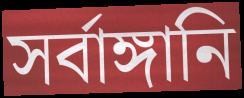
সর্বাঙ্গানি